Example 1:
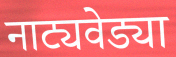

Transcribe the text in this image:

नाट्यवेड्या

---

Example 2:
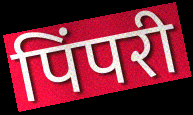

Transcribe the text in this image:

पिंपरी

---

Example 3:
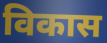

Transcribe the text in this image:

विकास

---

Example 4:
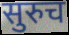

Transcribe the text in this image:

सुरुच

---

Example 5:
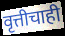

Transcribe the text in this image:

वृत्तीचाही